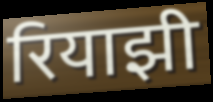
रियाझी